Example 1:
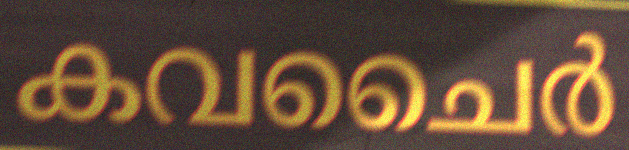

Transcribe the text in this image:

കവചൈർ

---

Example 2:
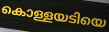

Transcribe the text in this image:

കൊള്ളയടിയെ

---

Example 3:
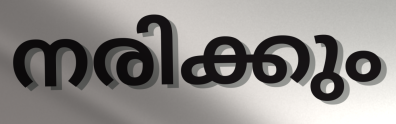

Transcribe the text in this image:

നരിക്കും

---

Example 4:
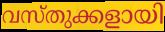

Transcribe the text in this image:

വസ്തുക്കളായി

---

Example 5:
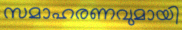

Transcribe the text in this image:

സമാഹരണവുമായി